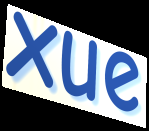
xue